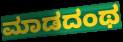
ಮಾಡದಂಥ